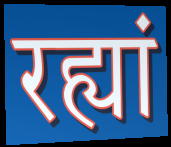
रह्यां